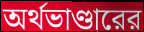
অর্থভাণ্ডারের